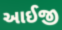
આઈજી